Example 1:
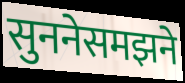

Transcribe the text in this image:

सुननेसमझने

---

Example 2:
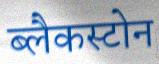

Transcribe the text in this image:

ब्लैकस्टोन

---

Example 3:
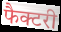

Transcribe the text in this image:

फैक्टरी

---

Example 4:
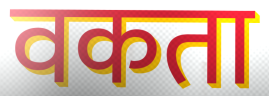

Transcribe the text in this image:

वकता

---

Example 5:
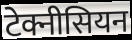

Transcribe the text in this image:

टेक्नीसियन